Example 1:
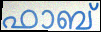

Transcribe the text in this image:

ഫാബ്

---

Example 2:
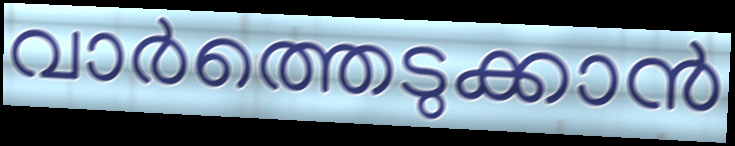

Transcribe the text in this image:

വാർത്തെടുക്കാൻ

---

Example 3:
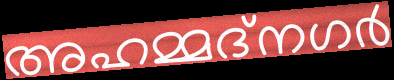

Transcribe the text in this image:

അഹമ്മദ്നഗർ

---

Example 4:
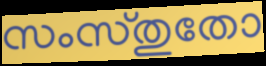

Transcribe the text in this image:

സംസ്തുതോ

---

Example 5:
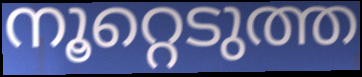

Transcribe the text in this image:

നൂറ്റെടുത്ത